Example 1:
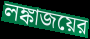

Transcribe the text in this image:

লঙ্কাজয়ের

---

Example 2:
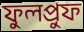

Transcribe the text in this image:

ফুলপ্রুফ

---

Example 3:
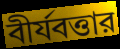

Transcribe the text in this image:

বীর্যবত্তার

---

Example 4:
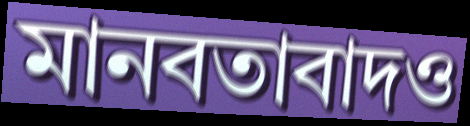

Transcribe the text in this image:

মানবতাবাদও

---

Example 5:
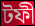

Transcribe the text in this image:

টফী